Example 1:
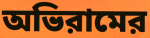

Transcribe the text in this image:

অভিরামের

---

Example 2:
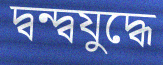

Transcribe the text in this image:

দ্বন্দ্বযুদ্ধে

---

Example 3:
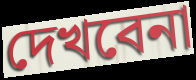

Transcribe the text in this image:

দেখবেনা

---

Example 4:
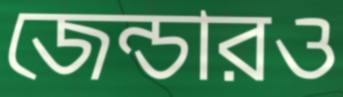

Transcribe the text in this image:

জেন্ডারও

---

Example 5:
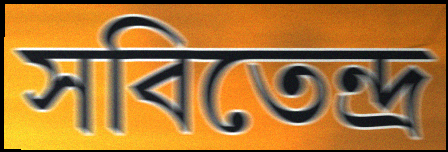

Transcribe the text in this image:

সবিতেন্দ্র